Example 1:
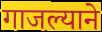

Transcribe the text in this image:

गाजल्याने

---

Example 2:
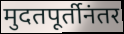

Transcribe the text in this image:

मुदतपूर्तीनंतर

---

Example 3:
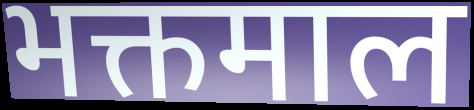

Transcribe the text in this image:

भक्तमाल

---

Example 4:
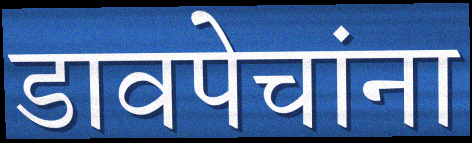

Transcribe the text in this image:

डावपेचांना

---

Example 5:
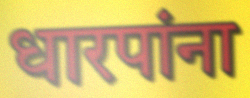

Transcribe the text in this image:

धारपांना